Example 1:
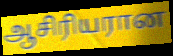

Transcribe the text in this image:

ஆசிரியரான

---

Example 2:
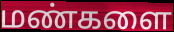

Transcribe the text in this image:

மண்களை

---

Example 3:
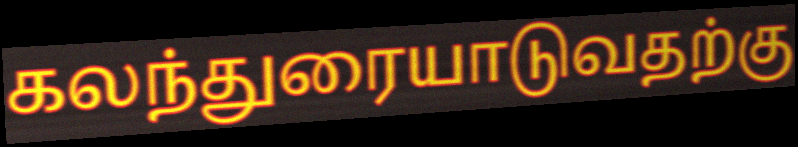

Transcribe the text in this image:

கலந்துரையாடுவதற்கு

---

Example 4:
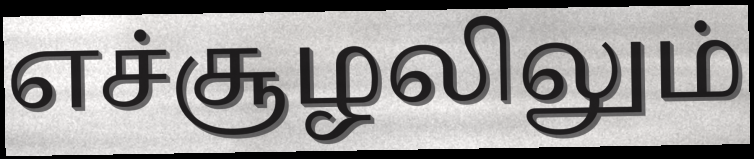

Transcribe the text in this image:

எச்சூழலிலும்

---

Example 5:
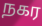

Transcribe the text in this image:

நகர